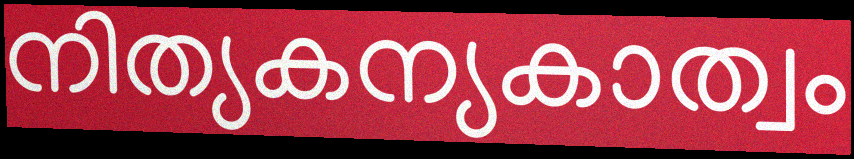
നിത്യകന്യകാത്വം